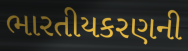
ભારતીયકરણની